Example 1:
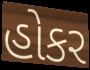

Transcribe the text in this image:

હોકર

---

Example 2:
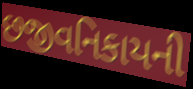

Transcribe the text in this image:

છજીવનિકાયની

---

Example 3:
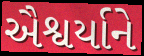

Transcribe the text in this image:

ઐશ્વર્યાને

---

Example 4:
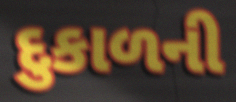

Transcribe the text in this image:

દુકાળની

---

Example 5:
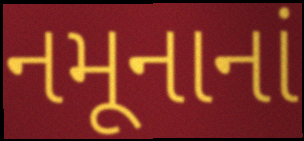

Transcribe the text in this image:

નમૂનાનાં